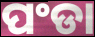
ପଂଡା